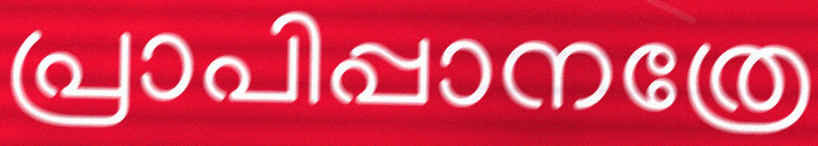
പ്രാപിപ്പാനത്രേ